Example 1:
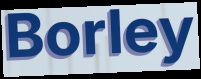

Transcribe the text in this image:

Borley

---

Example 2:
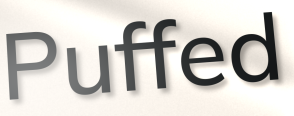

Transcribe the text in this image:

Puffed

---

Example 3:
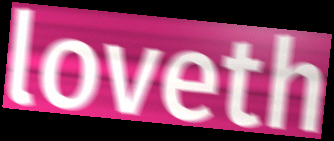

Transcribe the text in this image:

loveth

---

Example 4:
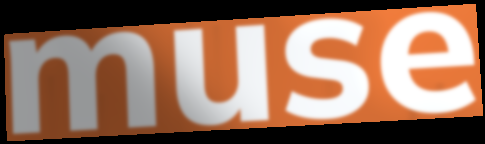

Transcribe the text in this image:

muse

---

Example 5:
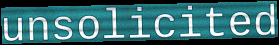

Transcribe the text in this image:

unsolicited